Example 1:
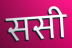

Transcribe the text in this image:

ससी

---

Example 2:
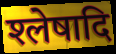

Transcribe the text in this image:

श्लेषादि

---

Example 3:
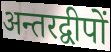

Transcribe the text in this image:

अन्तरद्वीपों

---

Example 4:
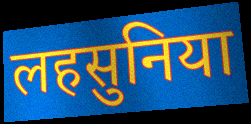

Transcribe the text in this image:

लहसुनिया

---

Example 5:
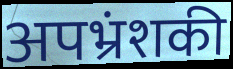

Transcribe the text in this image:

अपभ्रंशकी